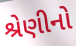
શ્રેણીનો